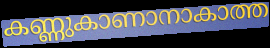
കണ്ണുകാണാനാകാത്ത